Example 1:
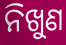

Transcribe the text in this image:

ନିଖୁଣ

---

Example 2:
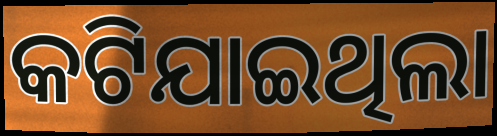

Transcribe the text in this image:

କଟିଯାଇଥିଲା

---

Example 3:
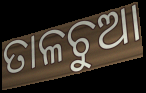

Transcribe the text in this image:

ତାଳଚୁଆ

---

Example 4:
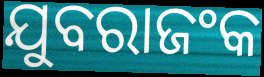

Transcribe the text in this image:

ଯୁବରାଜଂକ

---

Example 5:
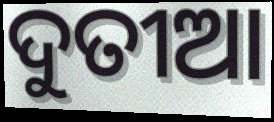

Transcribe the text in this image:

ଦୁତୀଆ